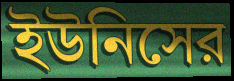
ইউনিসের